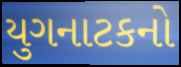
યુગનાટકનો